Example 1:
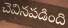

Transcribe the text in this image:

చెవినపడింది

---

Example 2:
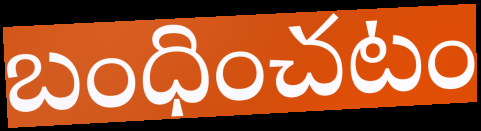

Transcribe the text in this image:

బంధించటం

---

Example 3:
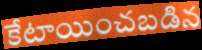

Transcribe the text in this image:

కేటాయించబడిన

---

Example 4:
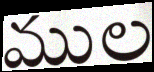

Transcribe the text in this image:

ముల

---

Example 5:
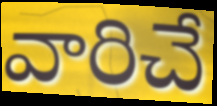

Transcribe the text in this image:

వారిచే